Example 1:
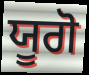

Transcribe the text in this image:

ਯੂਗੋ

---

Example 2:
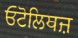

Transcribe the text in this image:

ਓਟੋਲਿਥਜ਼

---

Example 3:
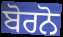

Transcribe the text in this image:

ਬੋਰਨੋ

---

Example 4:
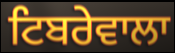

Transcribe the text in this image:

ਟਿਬਰੇਵਾਲਾ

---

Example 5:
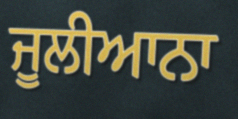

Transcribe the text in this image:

ਜੂਲੀਆਨਾ